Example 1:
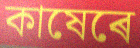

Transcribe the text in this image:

কাষেৰে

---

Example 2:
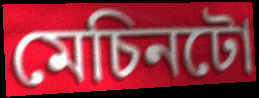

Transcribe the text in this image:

মেচিনটো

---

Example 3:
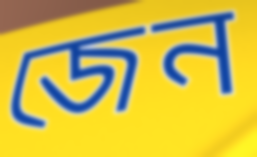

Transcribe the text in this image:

জেন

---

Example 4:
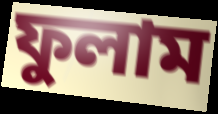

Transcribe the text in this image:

ফুলাম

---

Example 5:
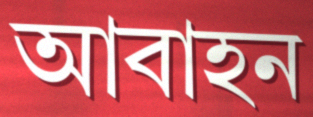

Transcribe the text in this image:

আবাহন